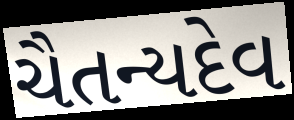
ચૈતન્યદેવ